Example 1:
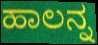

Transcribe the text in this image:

ಹಾಲನ್ನ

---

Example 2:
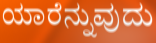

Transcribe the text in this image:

ಯಾರೆನ್ನುವುದು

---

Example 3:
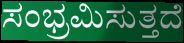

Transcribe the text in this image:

ಸಂಭ್ರಮಿಸುತ್ತದೆ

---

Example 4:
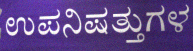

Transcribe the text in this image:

ಉಪನಿಷತ್ತುಗಳ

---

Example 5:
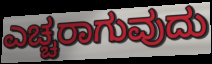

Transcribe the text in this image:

ಎಚ್ಚರಾಗುವುದು